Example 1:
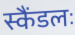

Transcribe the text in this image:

स्कैंडलः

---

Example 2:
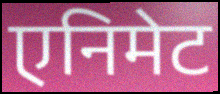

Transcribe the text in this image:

एनिमेट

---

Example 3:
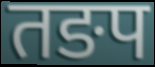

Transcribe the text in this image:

तङप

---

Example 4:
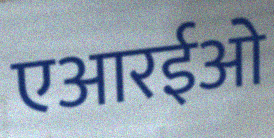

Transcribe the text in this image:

एआरईओ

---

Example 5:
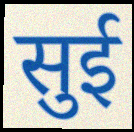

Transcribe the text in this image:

सुई